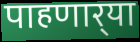
पाहणार्‍या